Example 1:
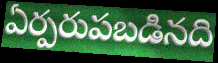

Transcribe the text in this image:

ఏర్పరుపబడినది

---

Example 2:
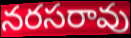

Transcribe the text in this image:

నరసరావు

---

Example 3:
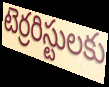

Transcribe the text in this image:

టెర్రరిస్టులకు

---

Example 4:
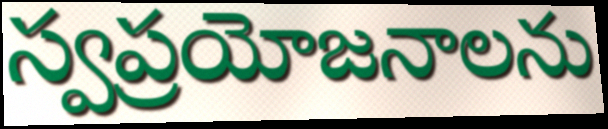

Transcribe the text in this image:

స్వప్రయోజనాలను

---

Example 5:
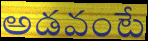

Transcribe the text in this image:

అడవంటే